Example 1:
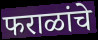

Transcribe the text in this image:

फराळांचे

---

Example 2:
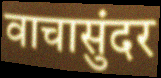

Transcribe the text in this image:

वाचासुंदर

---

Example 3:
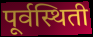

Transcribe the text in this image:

पूर्वस्थिती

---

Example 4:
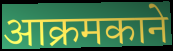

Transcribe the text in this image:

आक्रमकाने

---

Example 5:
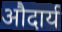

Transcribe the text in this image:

औदार्य